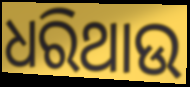
ଧରିଥାଉ